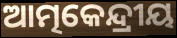
ଆତ୍ମକେନ୍ଦ୍ରୀୟ